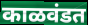
काळवंडत